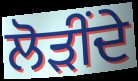
ਲੋੜੀਂਦੇ